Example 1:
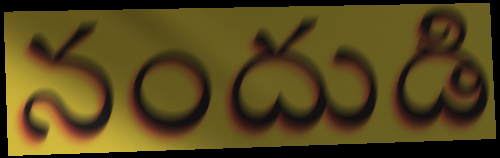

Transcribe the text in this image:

నందుడి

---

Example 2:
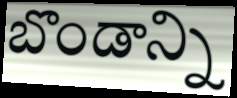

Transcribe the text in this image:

బొండాన్ని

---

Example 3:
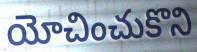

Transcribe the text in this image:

యోచించుకొని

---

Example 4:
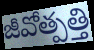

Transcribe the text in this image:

జీవోత్పత్తి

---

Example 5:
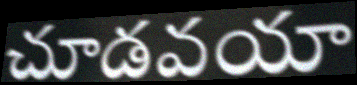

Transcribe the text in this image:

చూడవయా